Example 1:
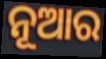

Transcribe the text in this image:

ନୂଆର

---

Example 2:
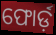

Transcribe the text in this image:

ଫୋର୍ଡ଼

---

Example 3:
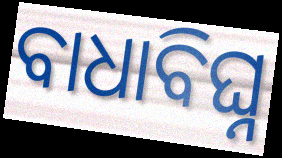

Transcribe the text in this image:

ବାଧାବିଘ୍ନ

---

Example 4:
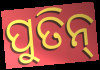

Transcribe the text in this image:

ପୁତିନ୍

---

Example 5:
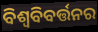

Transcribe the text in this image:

ବିଶ୍ଵବିବର୍ତ୍ତନର